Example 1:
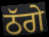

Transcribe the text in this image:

ਠੱਗੇ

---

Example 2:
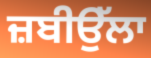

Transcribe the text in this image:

ਜ਼ਬੀਉੱਲਾ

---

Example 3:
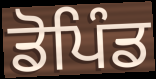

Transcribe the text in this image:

ਡੋਪਿੰਡ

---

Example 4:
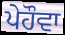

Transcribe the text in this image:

ਪੇਹੌਵਾ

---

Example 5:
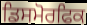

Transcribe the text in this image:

ਡਿਸਮੋਰਫਿਕ